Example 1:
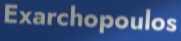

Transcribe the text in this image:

Exarchopoulos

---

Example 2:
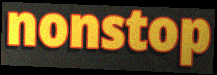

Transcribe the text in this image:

nonstop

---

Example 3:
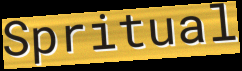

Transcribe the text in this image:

Spritual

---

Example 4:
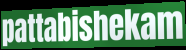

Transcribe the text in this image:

pattabishekam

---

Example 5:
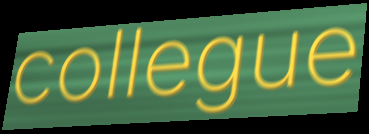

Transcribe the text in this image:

collegue